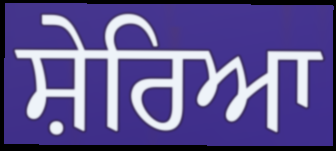
ਸ਼ੇਰਿਆ